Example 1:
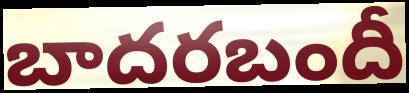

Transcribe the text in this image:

బాదరబందీ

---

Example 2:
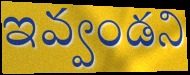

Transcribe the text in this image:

ఇవ్వండని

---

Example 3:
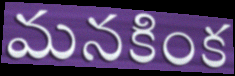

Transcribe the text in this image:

మనకింక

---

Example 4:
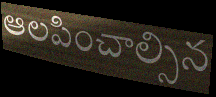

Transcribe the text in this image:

ఆలపించాల్సిన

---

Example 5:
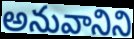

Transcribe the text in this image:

అనువానిని